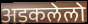
अडकलेलो